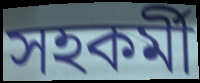
সহকর্মী